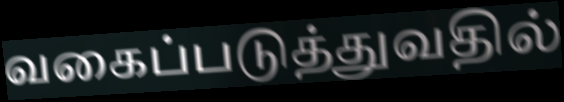
வகைப்படுத்துவதில்